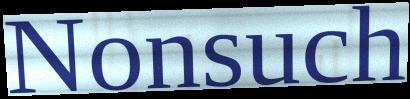
Nonsuch